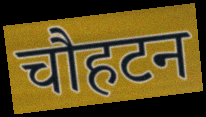
चौहटन